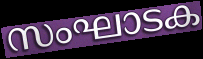
സംഘാടക